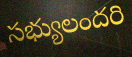
సభ్యులందరి